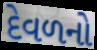
દેવળનો